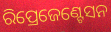
ରିପ୍ରେଜେଣ୍ଟେସନ